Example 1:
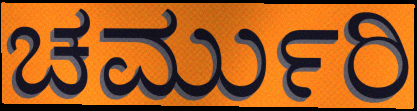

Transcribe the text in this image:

ಚರ್ಮುರಿ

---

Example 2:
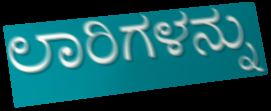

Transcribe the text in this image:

ಲಾರಿಗಳನ್ನು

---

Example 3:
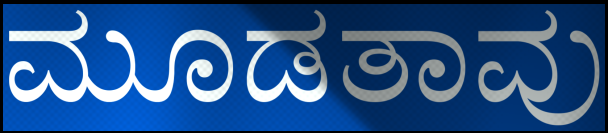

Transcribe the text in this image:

ಮೂಡತಾವು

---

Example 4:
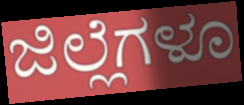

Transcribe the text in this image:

ಜಿಲ್ಲೆಗಳೂ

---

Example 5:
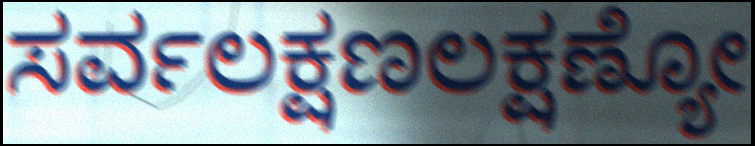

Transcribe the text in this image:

ಸರ್ವಲಕ್ಷಣಲಕ್ಷಣ್ಯೋ